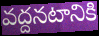
వద్దనటానికి